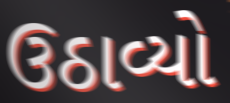
ઉઠાવ્યો